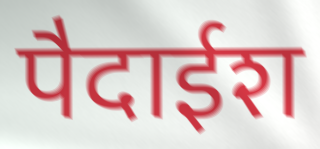
पैदाईश